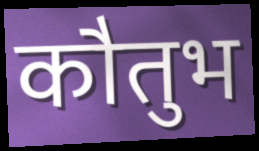
कौतुभ